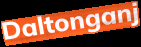
Daltonganj